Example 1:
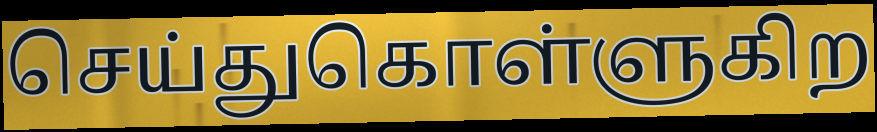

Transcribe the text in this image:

செய்துகொள்ளுகிற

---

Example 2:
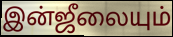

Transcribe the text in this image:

இன்ஜீலையும்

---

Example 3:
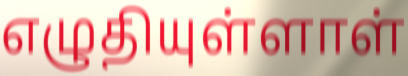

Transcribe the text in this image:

எழுதியுள்ளாள்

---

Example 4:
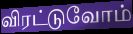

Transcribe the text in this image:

விரட்டுவோம்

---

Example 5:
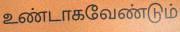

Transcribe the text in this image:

உண்டாகவேண்டும்